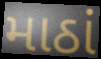
માઠાં